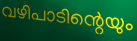
വഴിപാടിന്റെയും